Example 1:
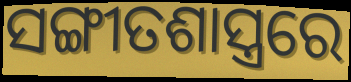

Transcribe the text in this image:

ସଙ୍ଗୀତଶାସ୍ତ୍ରରେ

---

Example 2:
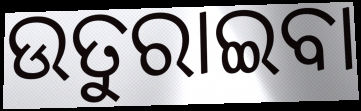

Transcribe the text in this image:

ଉତୁରାଇବା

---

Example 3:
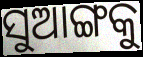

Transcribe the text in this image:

ସୁଆଙ୍ଗକୁ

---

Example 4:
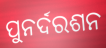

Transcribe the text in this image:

ପୁନର୍ଦରଶନ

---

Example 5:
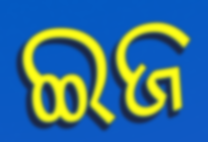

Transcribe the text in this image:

ଇଜ